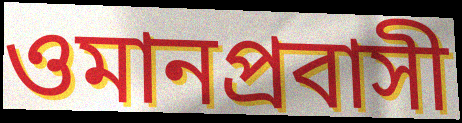
ওমানপ্রবাসী